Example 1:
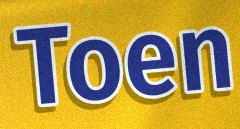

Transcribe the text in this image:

Toen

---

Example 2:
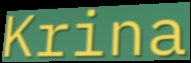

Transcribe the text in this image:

Krina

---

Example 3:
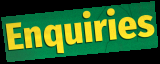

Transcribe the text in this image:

Enquiries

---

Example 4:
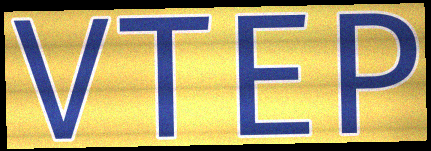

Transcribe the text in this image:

VTEP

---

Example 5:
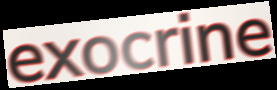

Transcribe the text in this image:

exocrine